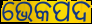
ଭେକପଦ